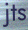
jts